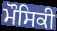
ਮੌਸਿਕੀ